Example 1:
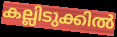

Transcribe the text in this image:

കല്ലിടുക്കിൽ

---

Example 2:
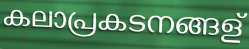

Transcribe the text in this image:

കലാപ്രകടനങ്ങള്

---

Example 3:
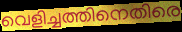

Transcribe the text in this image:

വെളിച്ചത്തിനെതിരെ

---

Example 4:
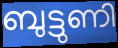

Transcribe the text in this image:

ബുട്ടുണി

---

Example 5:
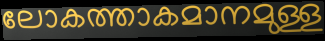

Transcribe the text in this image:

ലോകത്താകമാനമുള്ള